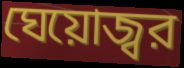
ঘেয়োজ্বর